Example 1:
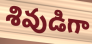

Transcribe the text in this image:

శివుడిగా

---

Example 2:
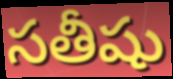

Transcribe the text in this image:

సతీషు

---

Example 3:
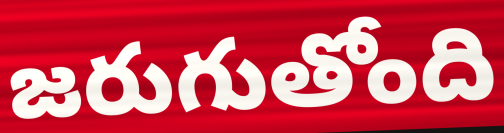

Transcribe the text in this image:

జరుగుతోంది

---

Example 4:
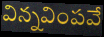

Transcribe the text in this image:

విన్నవింపవే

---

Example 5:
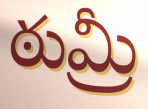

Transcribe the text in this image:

ఠుమ్రీ